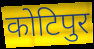
कोटिपुर